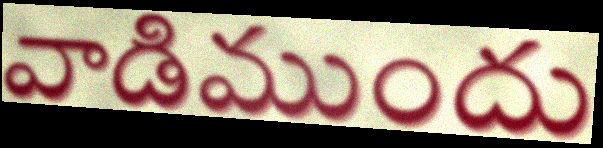
వాడిముందు